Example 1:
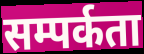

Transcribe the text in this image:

सम्पर्कता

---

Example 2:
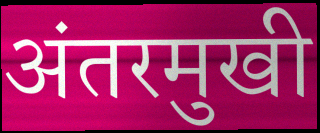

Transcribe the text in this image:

अंतरमुखी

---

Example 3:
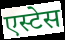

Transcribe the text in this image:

एस्टेस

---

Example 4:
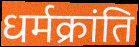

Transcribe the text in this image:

धर्मक्रांति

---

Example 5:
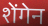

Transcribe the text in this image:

शेंगेन